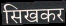
सिखकर